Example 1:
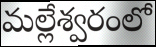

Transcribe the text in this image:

మల్లేశ్వరంలో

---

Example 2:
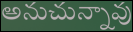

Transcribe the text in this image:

అనుచున్నావు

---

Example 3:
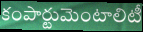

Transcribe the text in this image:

కంపార్టుమెంటాలిటీ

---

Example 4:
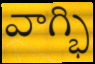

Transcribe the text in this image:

వాగ్భి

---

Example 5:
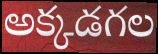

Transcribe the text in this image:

అక్కడగల